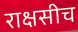
राक्षसीच